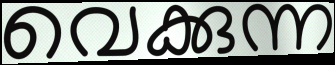
വെക്കുന്ന